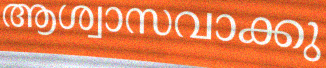
ആശ്വാസവാക്കു